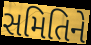
સમિતિને